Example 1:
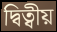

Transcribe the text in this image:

দ্বিত্বীয়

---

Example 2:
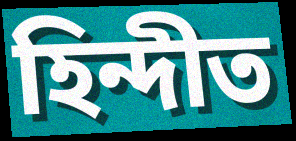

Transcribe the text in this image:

হিন্দীত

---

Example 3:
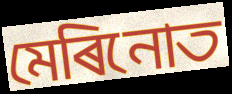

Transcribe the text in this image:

মেৰিনোত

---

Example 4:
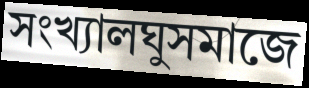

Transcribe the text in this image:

সংখ্যালঘুসমাজে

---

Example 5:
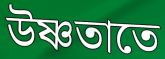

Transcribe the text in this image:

উষ্ণতাতে